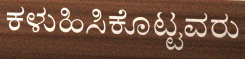
ಕಳುಹಿಸಿಕೊಟ್ಟವರು